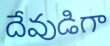
దేవుడిగా